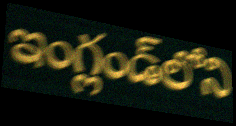
ఇంగ్లండ్‌లోని